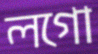
লগো